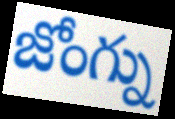
జోంగ్ను